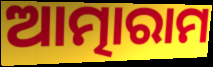
ଆତ୍ମାରାମ